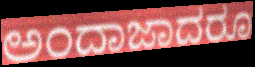
ಅಂದಾಜಾದರೂ